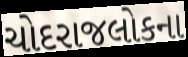
ચોદરાજલોકના